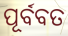
ପୂର୍ବବତ